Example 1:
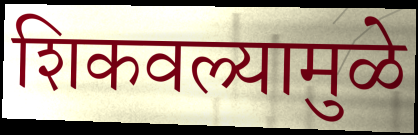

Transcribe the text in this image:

शिकवल्यामुळे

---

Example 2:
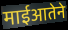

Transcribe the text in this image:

माईआतेने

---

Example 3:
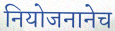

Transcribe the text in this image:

नियोजनानेच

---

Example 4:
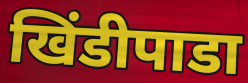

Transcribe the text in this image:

खिंडीपाडा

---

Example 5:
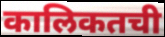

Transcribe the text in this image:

कालिकतची